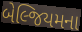
બેલ્જિયમના